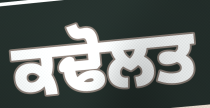
ਕਢੋਲਤ